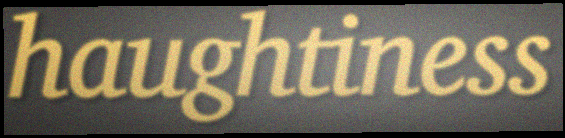
haughtiness